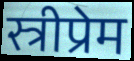
स्त्रीप्रेम